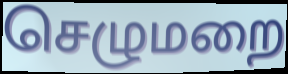
செழுமறை